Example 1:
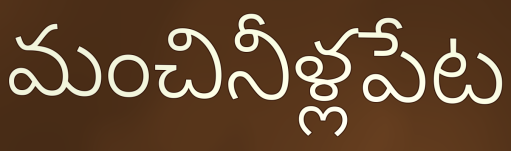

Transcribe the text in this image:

మంచినీళ్లపేట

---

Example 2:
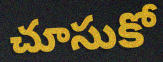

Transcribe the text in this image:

చూసుకో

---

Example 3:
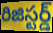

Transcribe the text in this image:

రిజిస్టర్డ్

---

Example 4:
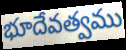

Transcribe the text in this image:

భూదేవత్వము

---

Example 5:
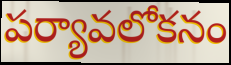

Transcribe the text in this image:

పర్యావలోకనం